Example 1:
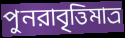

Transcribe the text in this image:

পুনরাবৃত্তিমাত্র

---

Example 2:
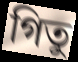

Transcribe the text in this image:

গিতু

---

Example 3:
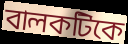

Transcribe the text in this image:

বালকটিকে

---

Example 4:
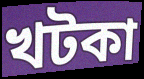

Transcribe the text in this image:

খটকা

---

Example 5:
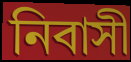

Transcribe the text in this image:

নিবাসী